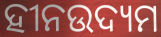
ହୀନଉଦ୍ୟମ